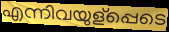
എന്നിവയുള്പ്പെടെ